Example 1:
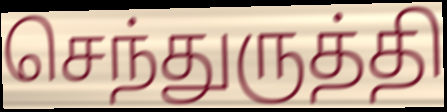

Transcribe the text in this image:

செந்துருத்தி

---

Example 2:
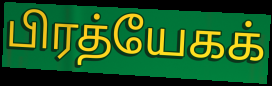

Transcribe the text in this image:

பிரத்யேகக்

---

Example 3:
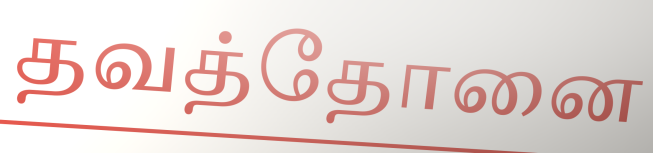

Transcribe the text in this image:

தவத்தோனை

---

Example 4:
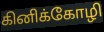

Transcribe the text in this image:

கினிக்கோழி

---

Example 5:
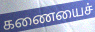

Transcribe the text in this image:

கணையைச்